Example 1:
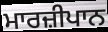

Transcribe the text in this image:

ਮਾਰਜ਼ੀਪਾਨ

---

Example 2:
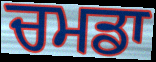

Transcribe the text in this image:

ਚਮਡਾ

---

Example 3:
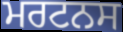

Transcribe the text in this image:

ਮਰਟਨਸ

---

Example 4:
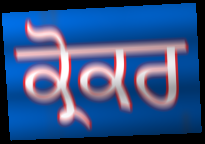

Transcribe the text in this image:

ਕ੍ਰੋਕਰ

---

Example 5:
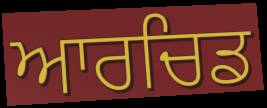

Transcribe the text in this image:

ਆਰਚਿਡ